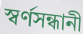
স্বর্ণসন্ধানী